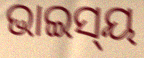
ଭାଇସ୍‌ୟ